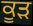
ਕੂੜ